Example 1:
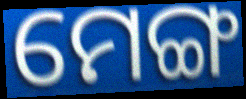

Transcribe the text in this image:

ମେଙ୍ଗ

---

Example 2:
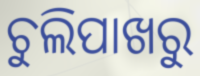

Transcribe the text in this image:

ଚୁଲିପାଖରୁ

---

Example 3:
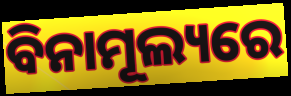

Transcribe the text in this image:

ବିନାମୂଲ୍ୟରେ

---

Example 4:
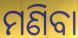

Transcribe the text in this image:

ମଣିବା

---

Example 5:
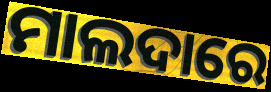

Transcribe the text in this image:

ମାଲଦାରେ